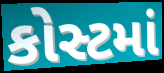
કોસ્ટમાં